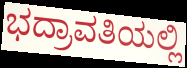
ಭದ್ರಾವತಿಯಲ್ಲಿ